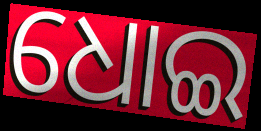
ଧୋଇ